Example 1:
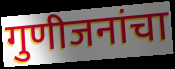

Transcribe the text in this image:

गुणीजनांचा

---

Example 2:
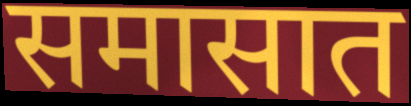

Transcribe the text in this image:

समासात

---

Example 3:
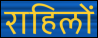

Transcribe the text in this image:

राहिलों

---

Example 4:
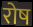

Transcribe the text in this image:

रोष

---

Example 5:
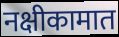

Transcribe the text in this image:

नक्षीकामात